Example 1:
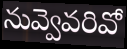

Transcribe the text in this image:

నువ్వెవరివో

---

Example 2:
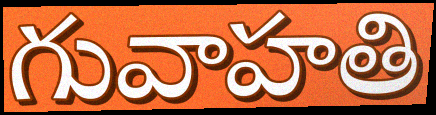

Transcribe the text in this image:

గువాహతి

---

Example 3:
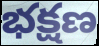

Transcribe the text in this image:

భక్షణ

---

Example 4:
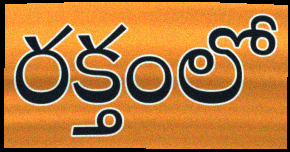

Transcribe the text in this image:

రక్తంలో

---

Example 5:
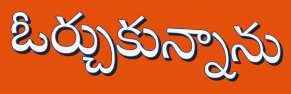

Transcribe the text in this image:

ఓర్చుకున్నాను